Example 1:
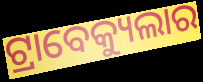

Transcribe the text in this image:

ଟ୍ରାବେକ୍ୟୁଲାର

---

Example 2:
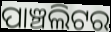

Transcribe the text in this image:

ପାଞ୍ଚଲିଟର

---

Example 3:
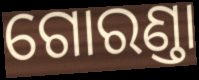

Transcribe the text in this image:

ଗୋରଣ୍ଡା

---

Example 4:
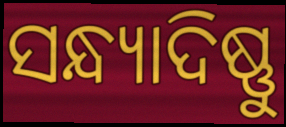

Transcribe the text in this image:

ସନ୍ଧ୍ୟାଦିଷ୍ଣୁ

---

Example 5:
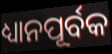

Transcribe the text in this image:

ଧ୍ୟାନପୂର୍ବକ